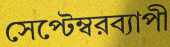
সেপ্টেম্বরব্যাপী